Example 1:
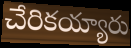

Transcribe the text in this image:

చేరికయ్యారు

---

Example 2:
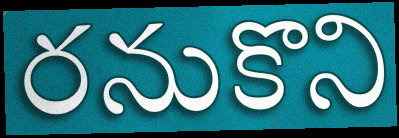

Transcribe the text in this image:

రనుకొని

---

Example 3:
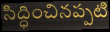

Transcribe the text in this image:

సిద్ధించినప్పటి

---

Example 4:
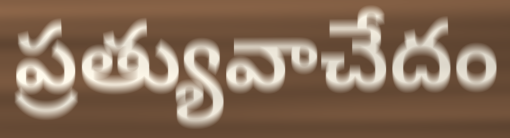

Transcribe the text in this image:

ప్రత్యువాచేదం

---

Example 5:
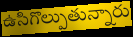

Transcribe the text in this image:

ఉసిగొల్పుతున్నారు